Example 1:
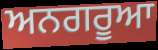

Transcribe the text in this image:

ਅਨਗਰੂਆ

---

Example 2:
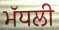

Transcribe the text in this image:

ਮੱਧਲੀ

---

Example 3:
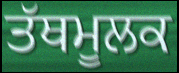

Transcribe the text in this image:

ਤੱਥਮੂਲਕ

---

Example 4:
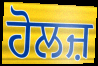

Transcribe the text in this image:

ਹੋਲਜ਼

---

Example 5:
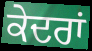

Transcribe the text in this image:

ਕੇਦਰਾਂ